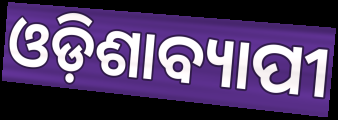
ଓଡ଼ିଶାବ୍ୟାପୀ